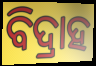
ବିଦ୍ରାହ